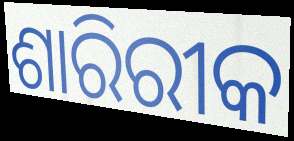
ଶାରିରୀକ